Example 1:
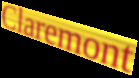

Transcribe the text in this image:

Claremont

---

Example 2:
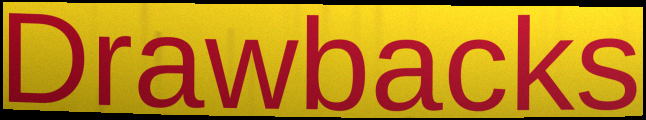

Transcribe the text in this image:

Drawbacks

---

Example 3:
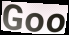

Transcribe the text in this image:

Goo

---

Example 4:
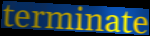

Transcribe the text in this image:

terminate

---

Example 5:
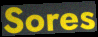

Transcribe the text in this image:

Sores